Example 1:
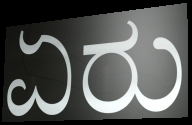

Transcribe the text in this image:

ಏರು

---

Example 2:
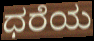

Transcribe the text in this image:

ಧರೆಯ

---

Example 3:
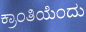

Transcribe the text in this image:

ಕ್ರಾಂತಿಯೆಂದು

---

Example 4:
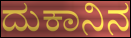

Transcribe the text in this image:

ದುಕಾನಿನ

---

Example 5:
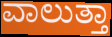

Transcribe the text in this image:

ವಾಲುತ್ತಾ